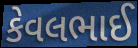
કેવલભાઈ